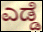
ಎಡ್ಡೆ